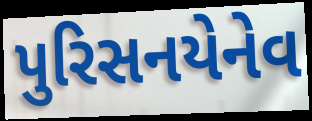
પુરિસનયેનેવ